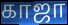
காஜா